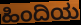
ಹಿಂದಿಯ